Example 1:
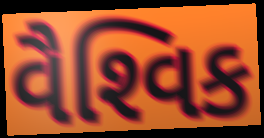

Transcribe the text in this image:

વૈશ્‍વિક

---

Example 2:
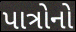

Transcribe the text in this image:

પાત્રોનો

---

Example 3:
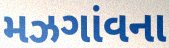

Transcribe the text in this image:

મઝગાંવના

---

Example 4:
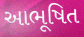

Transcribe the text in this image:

આભૂષિત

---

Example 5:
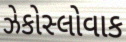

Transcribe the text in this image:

ઝેકોસ્લોવાક